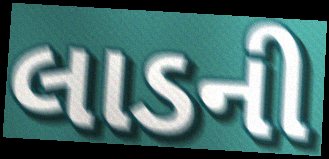
લાડની